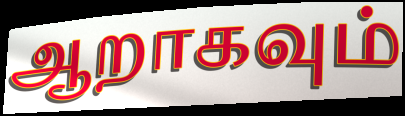
ஆறாகவும்